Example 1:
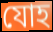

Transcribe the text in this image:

যোহ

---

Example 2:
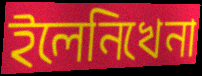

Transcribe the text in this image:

ইলেনিখেনা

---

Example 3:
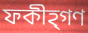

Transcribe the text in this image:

ফকীহ্গণ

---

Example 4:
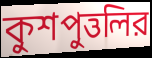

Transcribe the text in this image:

কুশপুত্তলির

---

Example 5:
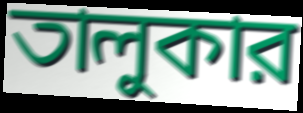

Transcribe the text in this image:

তালুকার